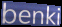
benki